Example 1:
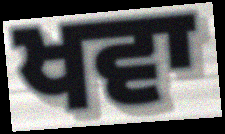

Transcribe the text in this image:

ਖਵਾ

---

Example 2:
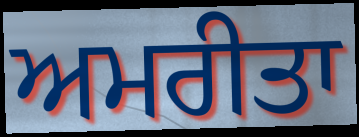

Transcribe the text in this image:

ਅਮਰੀਤਾ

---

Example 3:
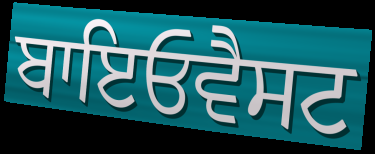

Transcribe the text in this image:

ਬਾਇਓਵੈਸਟ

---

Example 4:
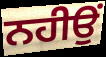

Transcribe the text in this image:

ਨਹੀਉਂ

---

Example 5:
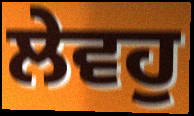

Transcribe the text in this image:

ਲੇਵਹੁ